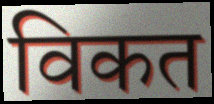
विकत